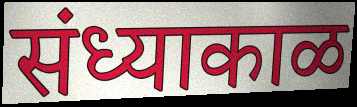
संध्याकाळ